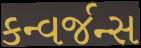
કન્વર્જન્સ